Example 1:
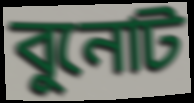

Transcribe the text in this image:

বুনোট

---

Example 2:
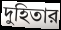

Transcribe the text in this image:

দুহিতার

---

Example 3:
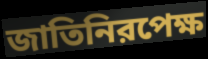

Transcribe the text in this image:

জাতিনিরপেক্ষ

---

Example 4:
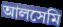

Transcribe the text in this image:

আলসেমি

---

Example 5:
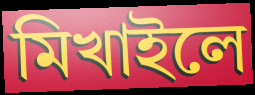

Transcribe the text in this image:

মিখাইলে